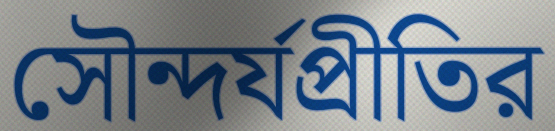
সৌন্দর্যপ্রীতির